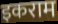
इकराम